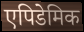
एपिडेमिक